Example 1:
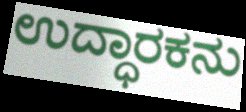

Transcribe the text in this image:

ಉದ್ಧಾರಕನು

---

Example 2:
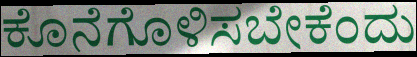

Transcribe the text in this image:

ಕೊನೆಗೊಳಿಸಬೇಕೆಂದು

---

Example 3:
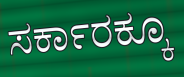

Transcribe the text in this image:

ಸರ್ಕಾರಕ್ಕೂ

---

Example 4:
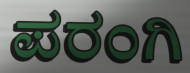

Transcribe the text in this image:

ಪರಂಗಿ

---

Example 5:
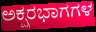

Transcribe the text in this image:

ಅಕ್ಷರಭಾಗಗಳ